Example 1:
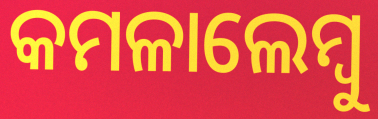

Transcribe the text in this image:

କମଳାଲେମ୍ୱୁ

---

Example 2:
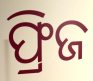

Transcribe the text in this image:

ଫ୍ରିଜ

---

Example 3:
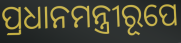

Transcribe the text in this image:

ପ୍ରଧାନମନ୍ତ୍ରୀରୂପେ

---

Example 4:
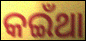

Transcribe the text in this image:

କଇଁଥା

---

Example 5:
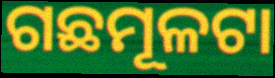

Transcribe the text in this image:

ଗଛମୂଳଟା